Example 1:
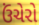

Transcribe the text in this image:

ઉંચેરો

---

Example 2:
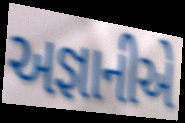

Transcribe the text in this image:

અજ્ઞાનીએ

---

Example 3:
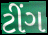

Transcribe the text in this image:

ટીંગ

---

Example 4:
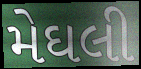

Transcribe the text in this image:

મેઘલી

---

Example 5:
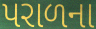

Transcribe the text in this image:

પરાળના